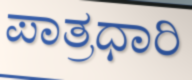
ಪಾತ್ರಧಾರಿ